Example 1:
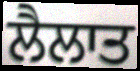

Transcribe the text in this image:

ਲੈਲਾਤ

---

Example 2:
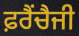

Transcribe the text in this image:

ਫ਼ਰੈਂਚੈਜੀ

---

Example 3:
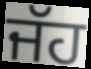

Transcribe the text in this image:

ਜੱਹ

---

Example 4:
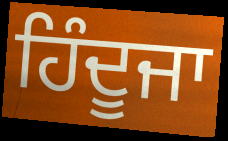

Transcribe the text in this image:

ਹਿੰਦੂਜਾ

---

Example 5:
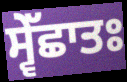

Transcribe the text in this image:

ਸ੍ਵੇੱਛਾਤਃ